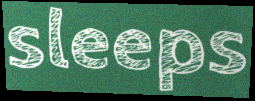
sleeps